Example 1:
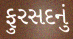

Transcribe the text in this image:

ફુરસદનું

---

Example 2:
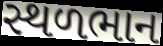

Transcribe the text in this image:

સ્થળભાન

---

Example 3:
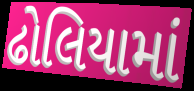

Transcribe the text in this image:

ઢોલિયામાં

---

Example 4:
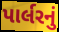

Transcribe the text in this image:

પાર્લરનું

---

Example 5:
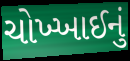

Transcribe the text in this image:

ચોખ્ખાઈનું